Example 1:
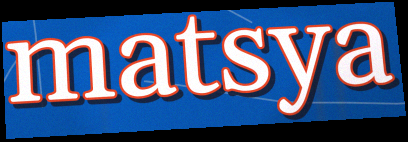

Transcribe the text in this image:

matsya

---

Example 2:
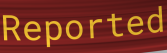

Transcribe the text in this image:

Reported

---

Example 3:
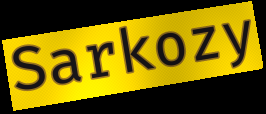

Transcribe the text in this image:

Sarkozy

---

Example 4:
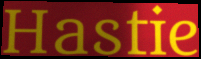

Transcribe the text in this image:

Hastie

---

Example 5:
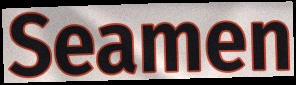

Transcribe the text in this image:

Seamen